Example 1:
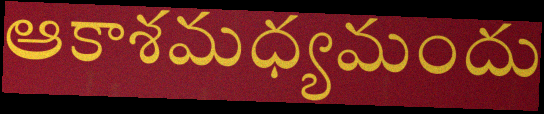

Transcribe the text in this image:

ఆకాశమధ్యమందు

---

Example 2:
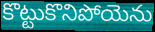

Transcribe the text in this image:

కొట్టుకొనిపోయెను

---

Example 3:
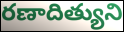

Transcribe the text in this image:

రణాదిత్యుని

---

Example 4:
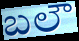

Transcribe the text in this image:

బలౌ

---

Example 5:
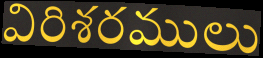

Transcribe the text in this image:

విరిశరములు